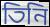
তিনি